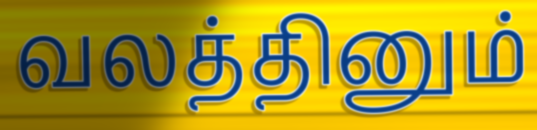
வலத்தினும்